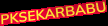
PKSEKARBABU